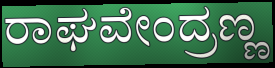
ರಾಘವೇಂದ್ರಣ್ಣ